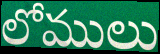
లోములు